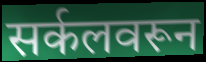
सर्कलवरून